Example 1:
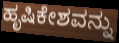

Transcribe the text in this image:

ಹೃಷಿಕೇಶವನ್ನು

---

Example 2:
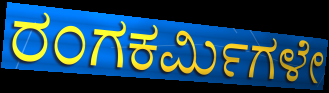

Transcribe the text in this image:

ರಂಗಕರ್ಮಿಗಳೇ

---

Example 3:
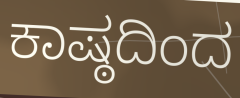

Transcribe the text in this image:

ಕಾಷ್ಠದಿಂದ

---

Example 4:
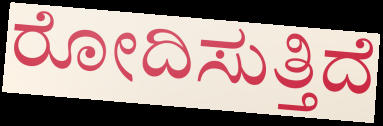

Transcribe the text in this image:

ರೋದಿಸುತ್ತಿದೆ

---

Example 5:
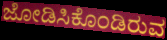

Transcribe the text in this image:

ಜೋಡಿಸಿಕೊಂಡಿರುವ